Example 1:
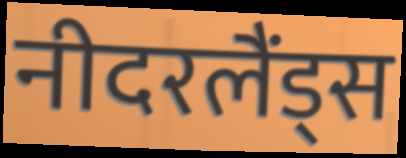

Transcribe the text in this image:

नीदरलैंड्स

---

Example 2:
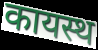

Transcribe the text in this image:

कायस्थ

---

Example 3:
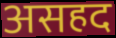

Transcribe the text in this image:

असहद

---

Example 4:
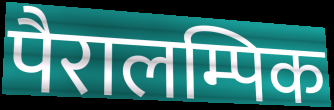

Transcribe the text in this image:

पैरालम्पिक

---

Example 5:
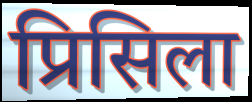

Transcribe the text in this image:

प्रिसिला